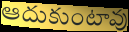
ఆదుకుంటావు